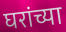
घरांच्या